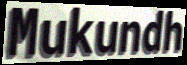
Mukundh